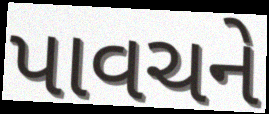
પાવચને